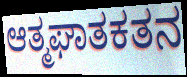
ಆತ್ಮಘಾತಕತನ